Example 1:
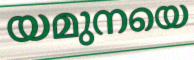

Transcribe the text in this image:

യമുനയെ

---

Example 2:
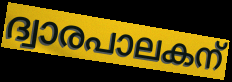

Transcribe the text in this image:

ദ്വാരപാലകന്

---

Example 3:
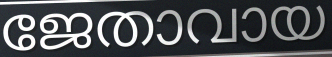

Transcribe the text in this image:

ജേതാവായ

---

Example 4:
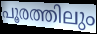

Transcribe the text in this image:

പൂരത്തിലും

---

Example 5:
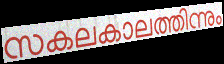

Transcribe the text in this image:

സകലകാലത്തിന്നും